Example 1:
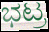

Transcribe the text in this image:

ಭಟ್ರ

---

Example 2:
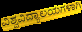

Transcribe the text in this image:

ವಿಶ್ವವಿದ್ಯಾಲಯಗಳಾಗಿ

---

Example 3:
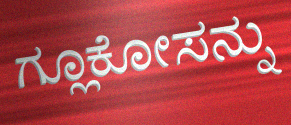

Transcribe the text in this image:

ಗ್ಲೂಕೋಸನ್ನು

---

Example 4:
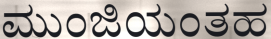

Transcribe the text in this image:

ಮುಂಜಿಯಂತಹ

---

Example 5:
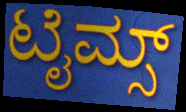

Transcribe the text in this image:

ಟೈಮ್ಸ್